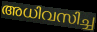
അധിവസിച്ച